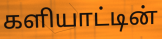
களியாட்டின்